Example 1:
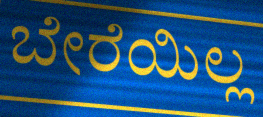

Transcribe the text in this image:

ಬೇರೆಯಿಲ್ಲ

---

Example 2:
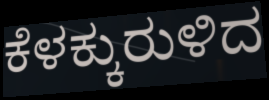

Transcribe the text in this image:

ಕೆಳಕ್ಕುರುಳಿದ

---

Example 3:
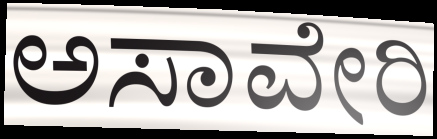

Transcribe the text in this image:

ಅಸಾವೇರಿ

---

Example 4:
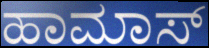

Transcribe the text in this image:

ಹಾಮಾಸ್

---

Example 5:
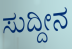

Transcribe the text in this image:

ಸುದ್ದೀನ